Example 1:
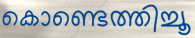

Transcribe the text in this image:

കൊണ്ടെത്തിച്ചൂ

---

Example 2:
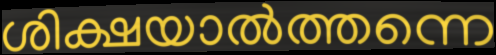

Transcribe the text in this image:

ശിക്ഷയാൽത്തന്നെ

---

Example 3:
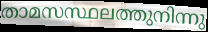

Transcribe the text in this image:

താമസസ്ഥലത്തുനിന്നു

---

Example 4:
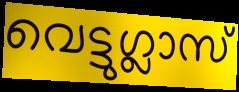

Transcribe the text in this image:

വെട്ടുഗ്ലാസ്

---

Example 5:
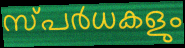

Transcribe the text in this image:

സ്പർധകളും